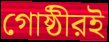
গোষ্ঠীরই